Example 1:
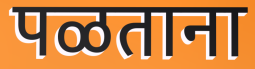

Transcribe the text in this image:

पळताना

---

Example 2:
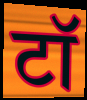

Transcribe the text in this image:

टॉ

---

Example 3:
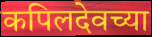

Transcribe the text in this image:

कपिलदेवच्या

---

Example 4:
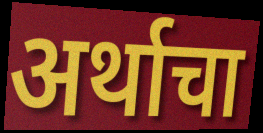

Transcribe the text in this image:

अर्थाचा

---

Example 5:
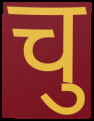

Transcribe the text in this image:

चु